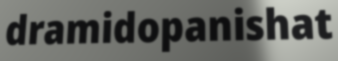
dramidopanishat